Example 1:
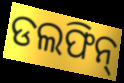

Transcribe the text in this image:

ଡଲଫିନ୍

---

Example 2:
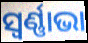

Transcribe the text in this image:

ସ୍ୱର୍ଣ୍ଣାଭା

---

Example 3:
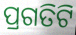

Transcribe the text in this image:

ପ୍ରଗତିଟି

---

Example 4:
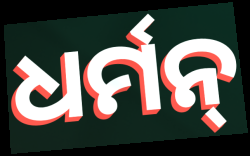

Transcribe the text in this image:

ଧର୍ମନ୍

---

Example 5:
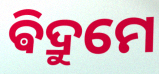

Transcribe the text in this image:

ଵିଦ୍ରୁମେ